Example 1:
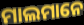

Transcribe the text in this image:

ମାଲମାନେ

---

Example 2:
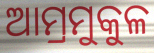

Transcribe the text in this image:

ଆମ୍ରମୁକୁଳ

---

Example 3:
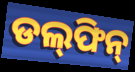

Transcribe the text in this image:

ଡଲ୍‍ଫିନ୍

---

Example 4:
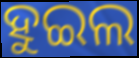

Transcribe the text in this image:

ହୁଇଲ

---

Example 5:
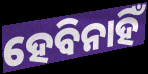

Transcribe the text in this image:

ହେବିନାହିଁ